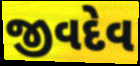
જીવદેવ